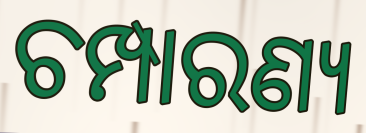
ଚମ୍ପାରଣ୍ୟ